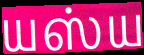
யஸ்ய